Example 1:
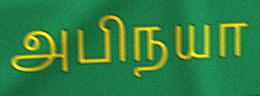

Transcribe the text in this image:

அபிநயா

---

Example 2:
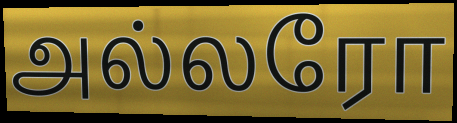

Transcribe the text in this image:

அல்லரோ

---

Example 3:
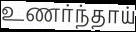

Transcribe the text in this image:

உணர்ந்தாய்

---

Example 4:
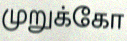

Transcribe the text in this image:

முறுக்கோ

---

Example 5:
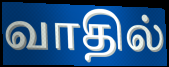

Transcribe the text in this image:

வாதில்